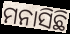
ମନାସିଛି